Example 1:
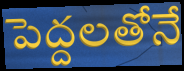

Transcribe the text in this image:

పెద్దలతోనే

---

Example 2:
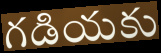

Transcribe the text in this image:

గడియకు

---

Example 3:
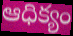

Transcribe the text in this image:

ఆధిక్యం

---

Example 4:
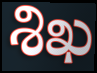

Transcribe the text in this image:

శిఖ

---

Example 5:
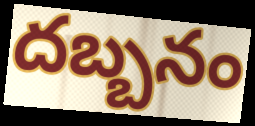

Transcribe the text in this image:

దబ్బనం